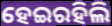
ହେଇରହିଲି